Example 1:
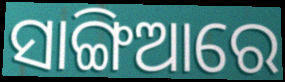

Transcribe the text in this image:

ସାଙ୍ଗିଆରେ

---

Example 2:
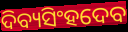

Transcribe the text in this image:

ଦିବ୍ୟସିଂହଦେବ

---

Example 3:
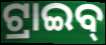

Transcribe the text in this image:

ଟ୍ରାଇବ୍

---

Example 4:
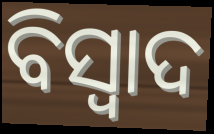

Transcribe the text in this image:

ବିସ୍ୱାଦ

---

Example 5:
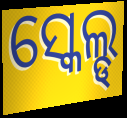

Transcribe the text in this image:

ସ୍କେଲ୍ଡ୍